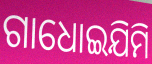
ଗାଧୋଇଯିମି